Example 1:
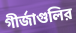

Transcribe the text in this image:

গীর্জাগুলির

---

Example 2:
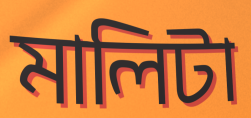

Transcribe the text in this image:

মালিটা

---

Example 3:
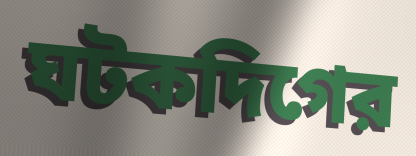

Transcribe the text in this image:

ঘটকদিগের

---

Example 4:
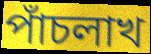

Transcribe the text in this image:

পাঁচলাখ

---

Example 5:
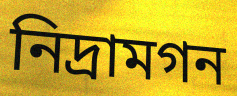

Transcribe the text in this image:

নিদ্রামগন